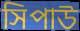
সিপাউ